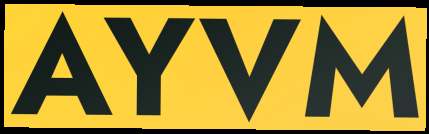
AYVM